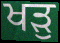
ਖੜੁ